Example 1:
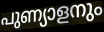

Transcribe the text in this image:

പുണ്യാളനും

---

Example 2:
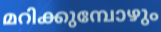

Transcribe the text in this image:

മറിക്കുമ്പോഴും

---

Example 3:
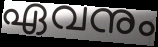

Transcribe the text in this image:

ഏവനും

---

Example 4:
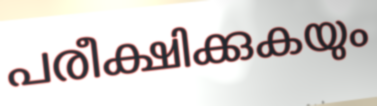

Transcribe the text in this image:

പരീക്ഷിക്കുകയും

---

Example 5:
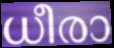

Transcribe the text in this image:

ധീരാ